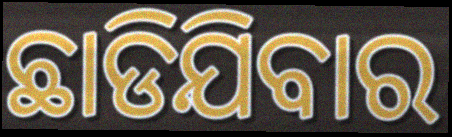
ଛାଡିଯିବାର